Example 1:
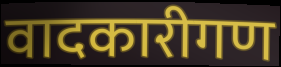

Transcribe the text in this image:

वादकारीगण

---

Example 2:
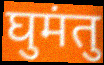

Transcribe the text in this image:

घुमंतु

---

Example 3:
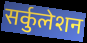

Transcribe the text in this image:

सर्कुलेशन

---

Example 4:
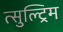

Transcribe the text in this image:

त्सुल्ट्रिम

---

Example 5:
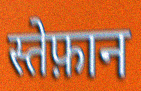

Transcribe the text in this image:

स्तेफ़ान